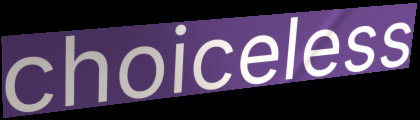
choiceless